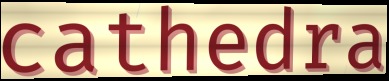
cathedra